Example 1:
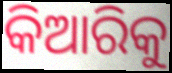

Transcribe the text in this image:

କିଆରିକୁ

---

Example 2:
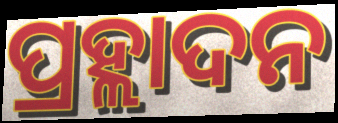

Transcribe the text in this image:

ପ୍ରହ୍ଲାଦନ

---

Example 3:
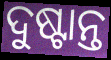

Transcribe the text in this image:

ଦୁଷ୍ଟାନ୍ତ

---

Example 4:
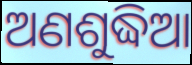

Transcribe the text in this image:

ଅଣଶୁଦ୍ଧିଆ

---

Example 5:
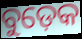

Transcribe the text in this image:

ବୁଡ଼େକ